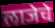
लाजेचे